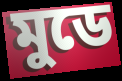
মুডে